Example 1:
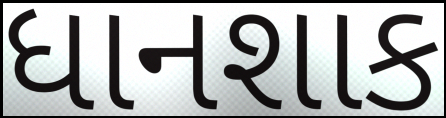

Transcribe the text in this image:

ધાનશાક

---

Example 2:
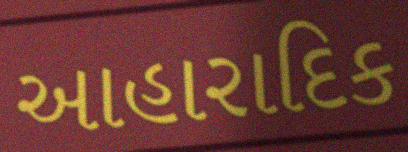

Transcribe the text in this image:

આહારાદિક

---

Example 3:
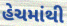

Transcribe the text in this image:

હેચમાંથી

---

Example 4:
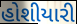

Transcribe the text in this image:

હોશીયારી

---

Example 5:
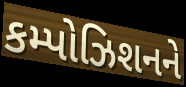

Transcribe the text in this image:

કમ્પોઝિશનને